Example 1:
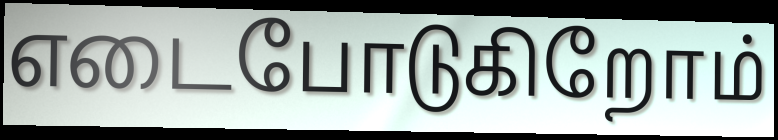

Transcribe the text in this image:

எடைபோடுகிறோம்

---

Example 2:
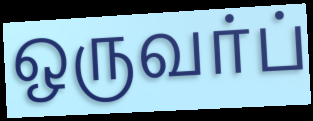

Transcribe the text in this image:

ஒருவர்ப்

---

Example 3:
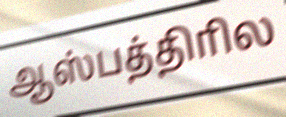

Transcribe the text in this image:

ஆஸ்பத்திரில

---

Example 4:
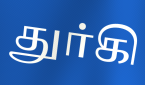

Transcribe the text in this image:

துர்கி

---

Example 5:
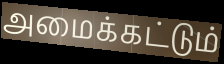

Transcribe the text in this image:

அமைக்கட்டும்